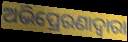
ଅଭିପ୍ରେରଣାଦ୍ୱାରା